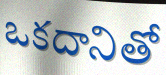
ఒకదానితో